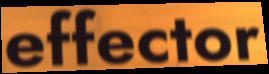
effector